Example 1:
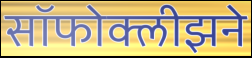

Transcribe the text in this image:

सॉफोक्लीझने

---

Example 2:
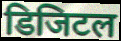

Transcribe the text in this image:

डिजिटल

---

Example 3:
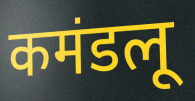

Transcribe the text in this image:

कमंडलू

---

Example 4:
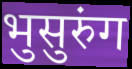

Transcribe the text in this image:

भुसुरुंग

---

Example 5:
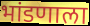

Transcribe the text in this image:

भांडणाला